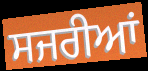
ਸਜਰੀਆਂ